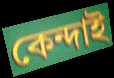
কেন্দাই